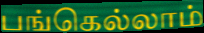
பங்கெல்லாம்